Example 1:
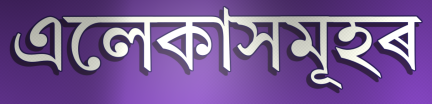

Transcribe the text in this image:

এলেকাসমূহৰ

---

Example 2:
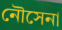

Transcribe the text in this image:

নৌসেনা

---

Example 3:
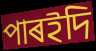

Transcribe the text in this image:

পাৰইদি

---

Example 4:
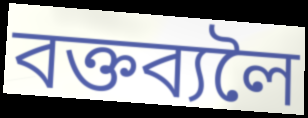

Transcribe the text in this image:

বক্তব্যলৈ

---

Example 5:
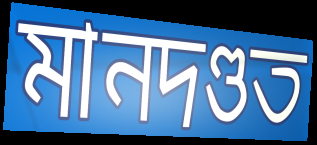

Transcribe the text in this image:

মানদণ্ডত